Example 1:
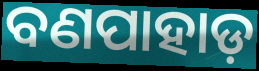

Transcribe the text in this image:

ବଣପାହାଡ଼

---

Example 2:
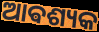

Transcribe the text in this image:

ଆଵଶ୍ୟକ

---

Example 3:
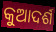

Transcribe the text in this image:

କୁଆଦର୍ଶ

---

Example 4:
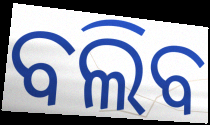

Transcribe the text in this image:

ବଲିବ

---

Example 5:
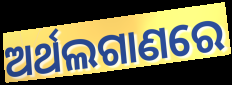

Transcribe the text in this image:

ଅର୍ଥଲଗାଣରେ